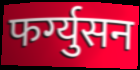
फर्ग्युसन